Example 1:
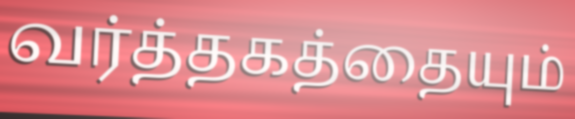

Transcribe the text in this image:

வர்த்தகத்தையும்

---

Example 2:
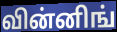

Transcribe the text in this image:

வின்னிங்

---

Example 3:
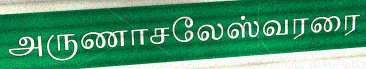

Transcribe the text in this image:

அருணாசலேஸ்வரரை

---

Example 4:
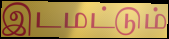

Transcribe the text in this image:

இடமட்டும்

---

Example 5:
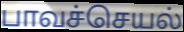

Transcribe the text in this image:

பாவச்செயல்